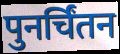
पुनर्चिंतन